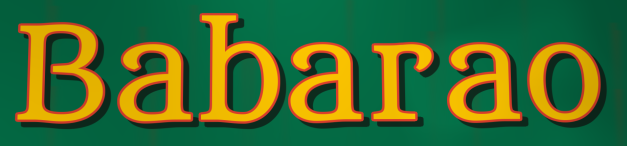
Babarao